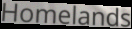
Homelands